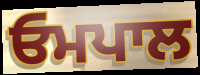
ਓਮਪਾਲ